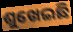
ଶୁଖେଇଛି